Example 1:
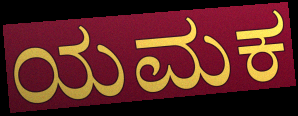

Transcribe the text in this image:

ಯಮಕ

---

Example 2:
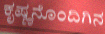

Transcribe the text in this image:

ಕೃಷ್ಣನೊಂದಿಗಿನ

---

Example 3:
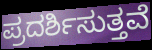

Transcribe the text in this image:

ಪ್ರದರ್ಶಿಸುತ್ತವೆ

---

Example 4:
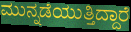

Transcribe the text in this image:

ಮುನ್ನಡೆಯುತ್ತಿದ್ದಾರೆ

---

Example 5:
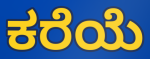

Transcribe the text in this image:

ಕರೆಯೆ